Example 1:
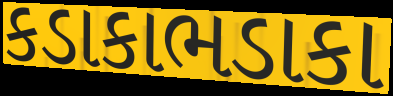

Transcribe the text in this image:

કડાકાભડાકા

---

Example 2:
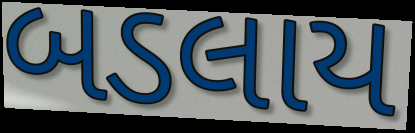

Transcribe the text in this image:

બડલાય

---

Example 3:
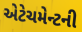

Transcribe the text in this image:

એટેચમેન્ટની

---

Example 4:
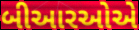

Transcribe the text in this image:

બીઆરઓએ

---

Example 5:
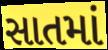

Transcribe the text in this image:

સાતમાં